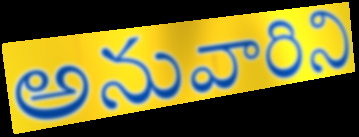
అనువారిని